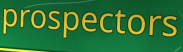
prospectors